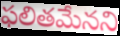
ఫలితమేనని